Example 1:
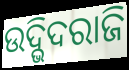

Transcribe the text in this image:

ଉଦ୍ଭିଦରାଜି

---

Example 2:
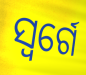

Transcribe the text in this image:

ସ୍ୱର୍ଗେ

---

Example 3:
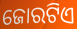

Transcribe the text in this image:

ଜୋରଟିଏ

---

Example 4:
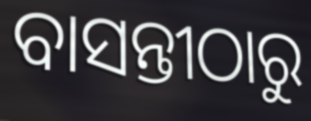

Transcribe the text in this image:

ବାସନ୍ତୀଠାରୁ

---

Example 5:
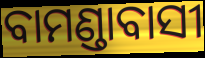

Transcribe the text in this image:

ବାମଣ୍ଡାବାସୀ